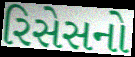
રિસેસનો